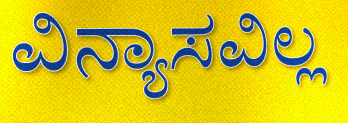
ವಿನ್ಯಾಸವಿಲ್ಲ